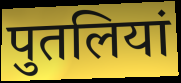
पुतलियां